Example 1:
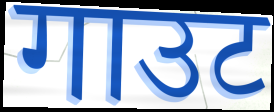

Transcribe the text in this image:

गाउट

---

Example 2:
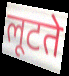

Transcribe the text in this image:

लूटते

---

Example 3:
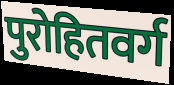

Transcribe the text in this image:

पुरोहितवर्ग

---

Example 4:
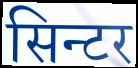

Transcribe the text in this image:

सिन्टर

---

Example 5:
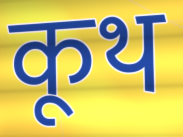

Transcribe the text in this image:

कूथ